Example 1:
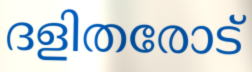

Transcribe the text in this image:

ദളിതരോട്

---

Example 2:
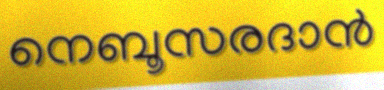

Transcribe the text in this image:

നെബൂസരദാൻ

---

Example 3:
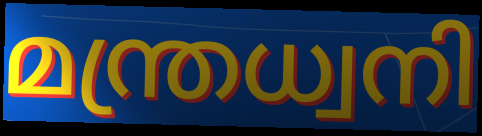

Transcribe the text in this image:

മന്ത്രധ്വനി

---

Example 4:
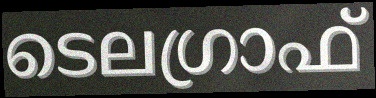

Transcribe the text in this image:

ടെലഗ്രാഫ്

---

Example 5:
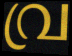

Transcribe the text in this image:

വ്ര